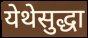
येथेसुद्धा